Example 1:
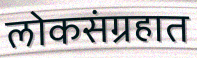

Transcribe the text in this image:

लोकसंग्रहात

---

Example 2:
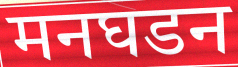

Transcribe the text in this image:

मनघडन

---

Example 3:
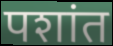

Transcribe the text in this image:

पशांत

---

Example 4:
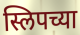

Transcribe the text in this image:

स्लिपच्या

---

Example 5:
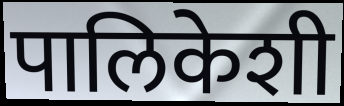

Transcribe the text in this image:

पालिकेशी